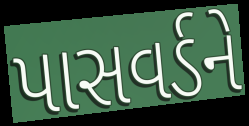
પાસવર્ડને